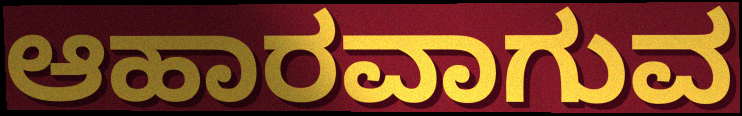
ಆಹಾರವಾಗುವ